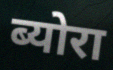
ब्योरा